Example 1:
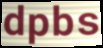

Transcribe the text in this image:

dpbs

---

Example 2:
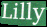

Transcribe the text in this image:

Lilly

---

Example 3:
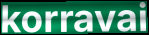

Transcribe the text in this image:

korravai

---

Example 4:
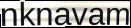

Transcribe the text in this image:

nknavam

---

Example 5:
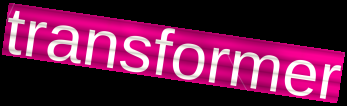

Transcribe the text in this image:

transformer